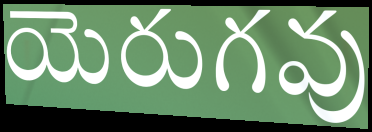
యెరుగవు